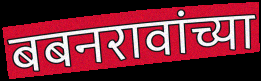
बबनरावांच्या